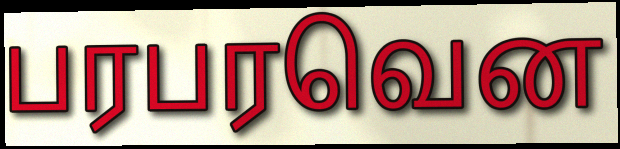
பரபரவென